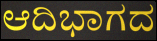
ಆದಿಭಾಗದ